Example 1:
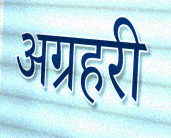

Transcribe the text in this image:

अग्रहरी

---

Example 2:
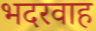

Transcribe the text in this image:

भदरवाह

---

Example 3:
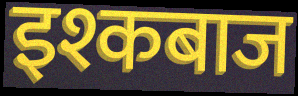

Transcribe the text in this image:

इश्कबाज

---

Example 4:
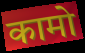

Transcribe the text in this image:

कामो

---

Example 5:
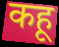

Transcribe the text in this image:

कहू